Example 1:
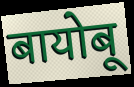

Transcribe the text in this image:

बायोबू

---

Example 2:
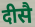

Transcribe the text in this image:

दीसै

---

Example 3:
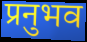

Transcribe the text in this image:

प्रनुभव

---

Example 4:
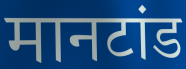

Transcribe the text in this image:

मानटांड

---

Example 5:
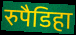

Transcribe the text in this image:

रुपैडिहा